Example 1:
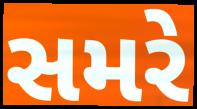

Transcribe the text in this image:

સમરે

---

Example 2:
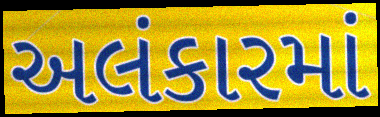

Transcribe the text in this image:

અલંકારમાં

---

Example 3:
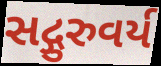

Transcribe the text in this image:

સદ્ગુરુવર્ય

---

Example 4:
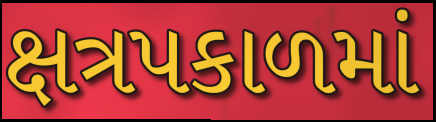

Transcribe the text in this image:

ક્ષત્રપકાળમાં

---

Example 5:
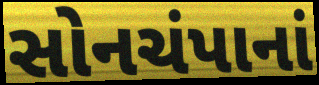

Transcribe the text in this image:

સોનચંપાનાં